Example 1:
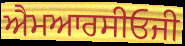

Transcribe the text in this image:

ਐਮਆਰਸੀਓਜੀ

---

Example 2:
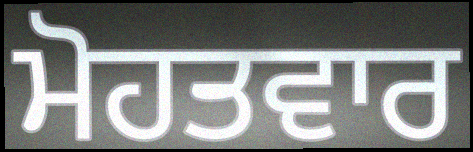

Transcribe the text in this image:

ਮੋਹਤਵਾਰ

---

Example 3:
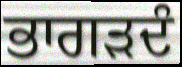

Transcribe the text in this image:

ਭਾਗੜਦੰ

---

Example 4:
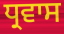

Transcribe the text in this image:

ਧ੍ਰਵਾਸ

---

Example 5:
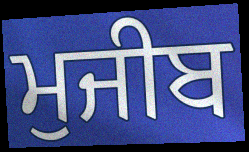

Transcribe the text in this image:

ਮੁਜੀਬ